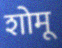
शोमू